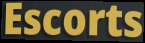
Escorts